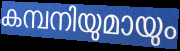
കമ്പനിയുമായും